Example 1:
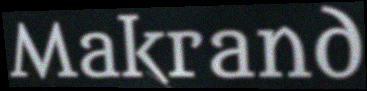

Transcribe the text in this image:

Makrand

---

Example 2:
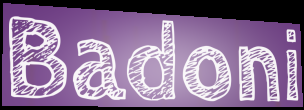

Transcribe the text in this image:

Badoni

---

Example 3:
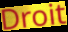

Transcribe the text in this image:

Droit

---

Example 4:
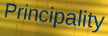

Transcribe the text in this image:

Principality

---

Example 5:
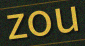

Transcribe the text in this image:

zou